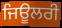
ਜਿਊਲਰੀ